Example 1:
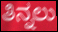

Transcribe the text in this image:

ತಿನ್ನಲು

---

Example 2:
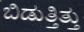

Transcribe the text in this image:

ಬಿಡುತ್ತಿತ್ತು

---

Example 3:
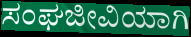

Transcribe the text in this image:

ಸಂಘಜೀವಿಯಾಗಿ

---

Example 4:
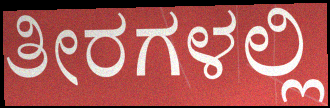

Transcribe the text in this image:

ತೀರಗಳಲ್ಲಿ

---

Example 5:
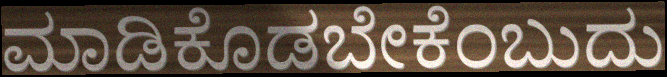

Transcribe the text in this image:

ಮಾಡಿಕೊಡಬೇಕೆಂಬುದು